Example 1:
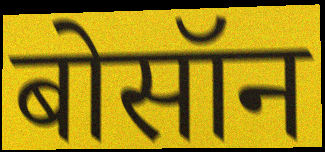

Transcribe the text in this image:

बोसॉन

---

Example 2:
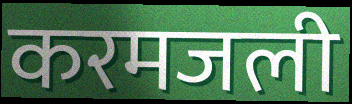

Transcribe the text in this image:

करमजली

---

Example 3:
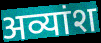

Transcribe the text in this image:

अव्यांश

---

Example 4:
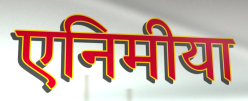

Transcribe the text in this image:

एनिमीया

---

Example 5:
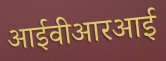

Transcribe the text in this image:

आईवीआरआई